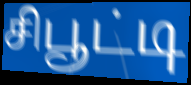
சிபூட்டி